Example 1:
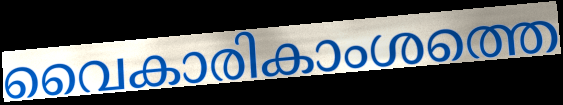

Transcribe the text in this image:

വൈകാരികാംശത്തെ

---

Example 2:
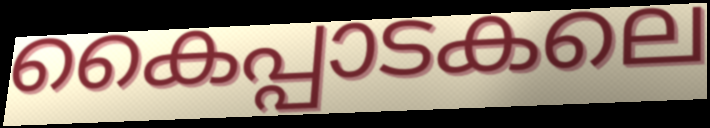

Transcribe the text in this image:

കൈപ്പാടകലെ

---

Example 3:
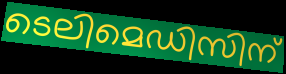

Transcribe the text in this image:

ടെലിമെഡിസിന്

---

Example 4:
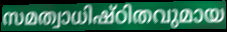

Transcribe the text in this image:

സമത്വാധിഷ്ഠിതവുമായ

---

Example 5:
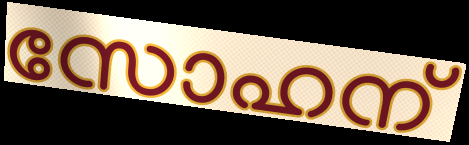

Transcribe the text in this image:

സോഹന്